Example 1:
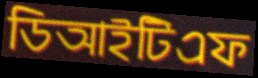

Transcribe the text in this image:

ডিআইটিএফ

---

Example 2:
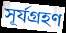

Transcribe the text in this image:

সূর্যগ্রহণ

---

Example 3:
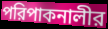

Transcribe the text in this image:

পরিপাকনালীর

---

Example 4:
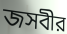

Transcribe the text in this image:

জসবীর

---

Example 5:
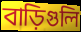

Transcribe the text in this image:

বাড়িগুলি